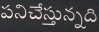
పనిచేస్తున్నది